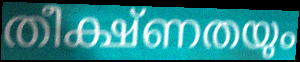
തീക്ഷ്‌ണതയും